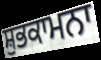
ਸ਼ੁਭਕਾਮਨਾ